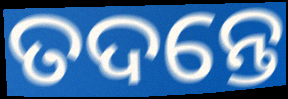
ତଦନ୍ତେ